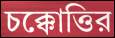
চক্কোত্তির